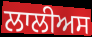
ਲਾਲੀਅਸ